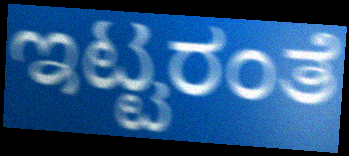
ಇಟ್ಟರಂತೆ